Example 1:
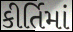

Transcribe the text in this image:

કીર્તિમાં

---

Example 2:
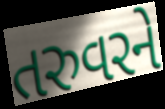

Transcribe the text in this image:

તરુવરને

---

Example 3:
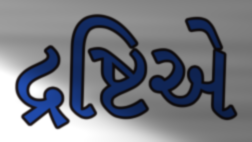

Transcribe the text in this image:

દ્રષ્ટિએ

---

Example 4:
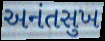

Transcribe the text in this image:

અનંતસુખ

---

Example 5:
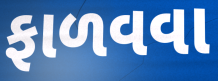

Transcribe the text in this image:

ફાળવવા